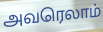
அவரெலாம்